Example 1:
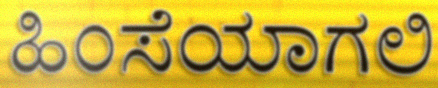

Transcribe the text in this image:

ಹಿಂಸೆಯಾಗಲಿ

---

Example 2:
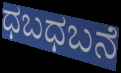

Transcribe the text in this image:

ಧಬಧಬನೆ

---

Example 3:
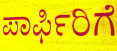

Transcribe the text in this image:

ಪಾರ್ಫಿರಿಗೆ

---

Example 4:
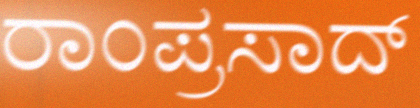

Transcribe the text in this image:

ರಾಂಪ್ರಸಾದ್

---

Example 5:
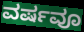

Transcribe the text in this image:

ವರ್ಷವೂ